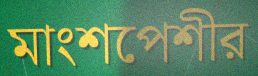
মাংশপেশীর